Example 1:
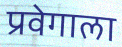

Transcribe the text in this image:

प्रवेगाला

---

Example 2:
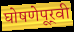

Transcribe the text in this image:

घोषणेपूर्वी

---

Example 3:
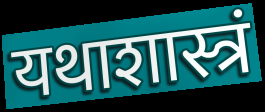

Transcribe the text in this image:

यथाशास्त्रं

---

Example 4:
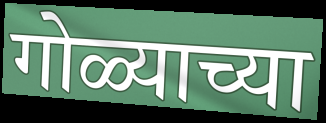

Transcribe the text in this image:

गोळ्याच्या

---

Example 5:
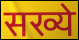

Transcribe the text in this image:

सख्ये